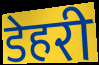
डेहरी